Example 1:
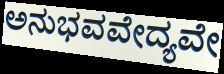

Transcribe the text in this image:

ಅನುಭವವೇದ್ಯವೇ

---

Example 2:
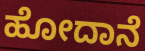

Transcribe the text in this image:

ಹೋದಾನೆ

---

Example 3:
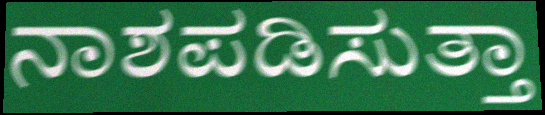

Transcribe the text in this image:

ನಾಶಪಡಿಸುತ್ತಾ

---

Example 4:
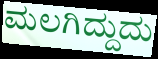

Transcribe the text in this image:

ಮಲಗಿದ್ದುದು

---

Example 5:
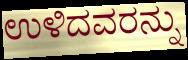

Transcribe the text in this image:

ಉಳಿದವರನ್ನು